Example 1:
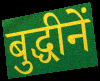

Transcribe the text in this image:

बुद्धीनें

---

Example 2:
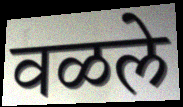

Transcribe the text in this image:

वळले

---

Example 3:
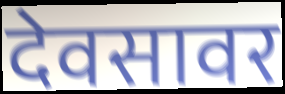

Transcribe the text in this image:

देवसावर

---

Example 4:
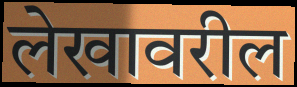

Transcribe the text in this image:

लेखावरील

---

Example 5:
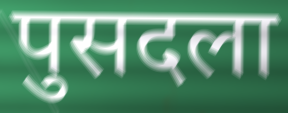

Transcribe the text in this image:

पुसदला